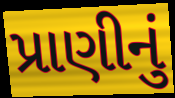
પ્રાણીનું